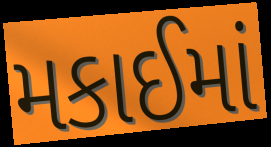
મકાઈમાં